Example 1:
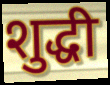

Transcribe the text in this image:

शुद्धी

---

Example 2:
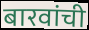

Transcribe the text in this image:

बारवांची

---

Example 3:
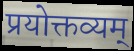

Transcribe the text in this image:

प्रयोक्तव्यम्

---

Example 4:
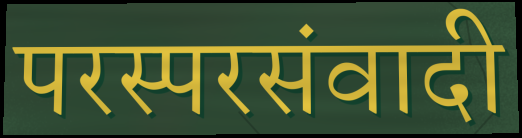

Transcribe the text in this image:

परस्परसंवादी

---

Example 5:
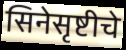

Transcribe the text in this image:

सिनेसृष्टीचे